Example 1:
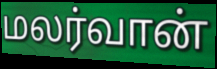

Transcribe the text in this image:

மலர்வான்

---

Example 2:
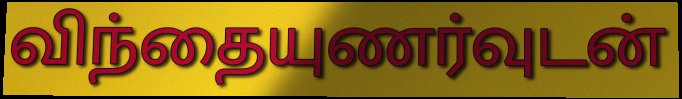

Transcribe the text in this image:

விந்தையுணர்வுடன்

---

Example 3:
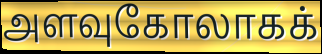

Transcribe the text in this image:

அளவுகோலாகக்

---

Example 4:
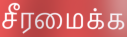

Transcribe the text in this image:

சீரமைக்க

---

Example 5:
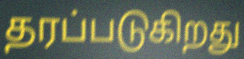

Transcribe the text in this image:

தரப்படுகிறது